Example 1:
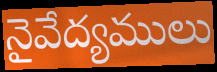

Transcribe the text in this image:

నైవేద్యములు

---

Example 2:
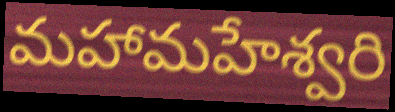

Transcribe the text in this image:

మహామహేశ్వరి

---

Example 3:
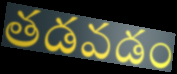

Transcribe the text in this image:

తడవడం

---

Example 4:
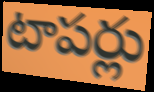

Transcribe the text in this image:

టాపర్లు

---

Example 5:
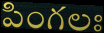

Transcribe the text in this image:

పింగలః